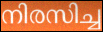
നിരസിച്ച